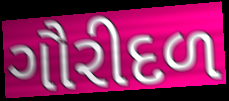
ગૌરીદળ